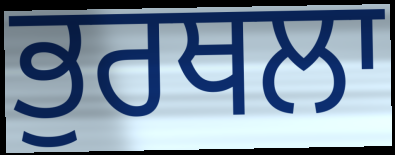
ਭੁਰਥਲਾ